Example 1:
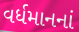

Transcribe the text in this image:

વર્ધમાનનાં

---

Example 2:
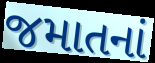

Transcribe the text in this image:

જમાતનાં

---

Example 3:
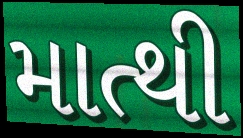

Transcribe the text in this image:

માત્થી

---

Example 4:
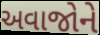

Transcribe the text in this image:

અવાજોને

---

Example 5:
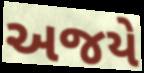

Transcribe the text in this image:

અજયે